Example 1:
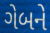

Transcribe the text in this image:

ગેબને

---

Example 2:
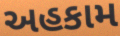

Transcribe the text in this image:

અહકામ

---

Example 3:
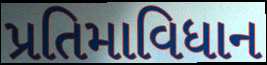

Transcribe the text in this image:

પ્રતિમાવિધાન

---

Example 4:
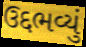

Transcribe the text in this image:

ઉદ્દભવ્યું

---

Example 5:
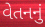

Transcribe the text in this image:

વેતનનું